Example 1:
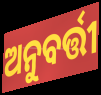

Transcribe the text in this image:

ଅନୁବର୍ତ୍ତୀ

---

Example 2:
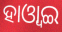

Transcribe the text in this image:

ହାଓ୍ୱାଇ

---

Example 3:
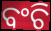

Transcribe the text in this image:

ବଂଚି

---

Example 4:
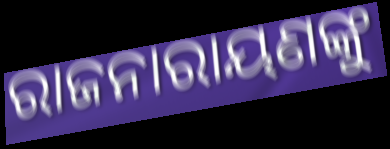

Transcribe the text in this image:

ରାଜନାରାୟଣଙ୍କୁ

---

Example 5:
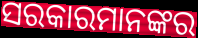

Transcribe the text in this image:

ସରକାରମାନଙ୍କର